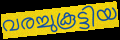
വരച്ചുകൂട്ടിയ